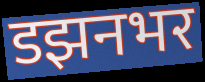
डझनभर